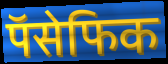
पॅसेफिक